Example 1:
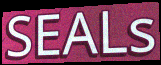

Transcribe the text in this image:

SEALs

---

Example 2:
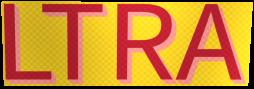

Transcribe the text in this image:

LTRA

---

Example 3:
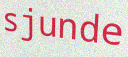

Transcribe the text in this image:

sjunde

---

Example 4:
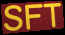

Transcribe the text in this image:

SFT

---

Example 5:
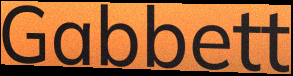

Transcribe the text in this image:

Gabbett